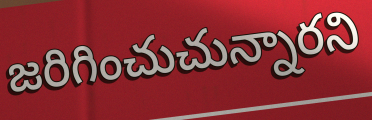
జరిగించుచున్నారని